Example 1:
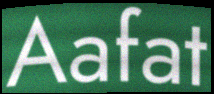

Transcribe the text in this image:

Aafat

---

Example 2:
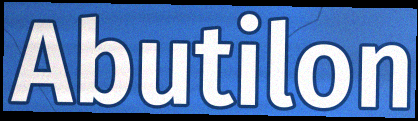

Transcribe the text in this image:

Abutilon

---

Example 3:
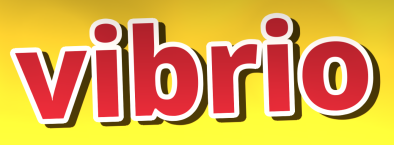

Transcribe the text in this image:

vibrio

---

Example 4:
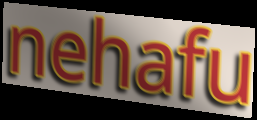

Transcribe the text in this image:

nehafu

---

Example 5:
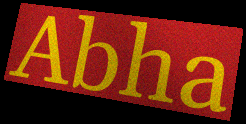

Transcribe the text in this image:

Abha